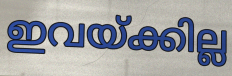
ഇവയ്ക്കില്ല